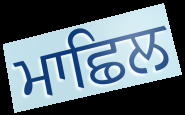
ਮਾਛਿਲ